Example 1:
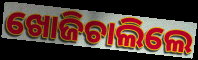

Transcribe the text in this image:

ଖୋଜିଚାଲିଲେ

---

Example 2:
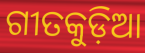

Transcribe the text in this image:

ଗୀତକୁଡ଼ିଆ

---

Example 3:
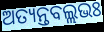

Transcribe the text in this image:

ଅତ୍ୟନ୍ତବଲ୍ଲଭଃ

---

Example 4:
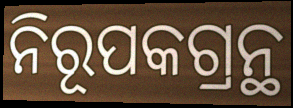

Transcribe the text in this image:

ନିରୂପକଗ୍ରନ୍ଥ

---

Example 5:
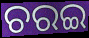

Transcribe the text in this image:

ଚରଇ